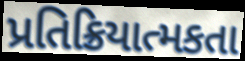
પ્રતિક્રિયાત્મકતા